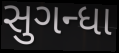
સુગન્ધા